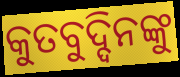
କୁତବୁଦ୍ଦିନଙ୍କୁ